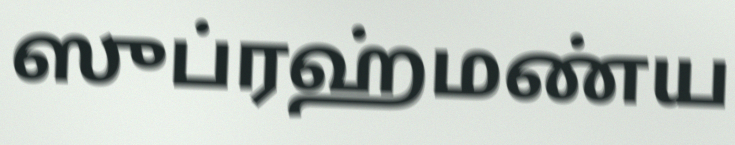
ஸுப்ரஹ்மண்ய